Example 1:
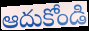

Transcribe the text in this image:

ఆదుకోండి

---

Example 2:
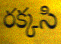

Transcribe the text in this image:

రక్కసి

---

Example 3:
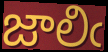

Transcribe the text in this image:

జాలిఁ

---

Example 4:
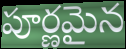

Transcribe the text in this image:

పూర్ణమైన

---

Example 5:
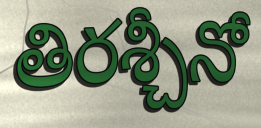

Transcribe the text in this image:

తిరశ్చీనో